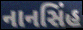
નાનસિંહ